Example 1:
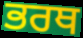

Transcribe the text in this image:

ਭਰਥ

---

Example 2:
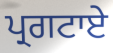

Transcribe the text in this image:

ਪ੍ਰਗਟਾਏ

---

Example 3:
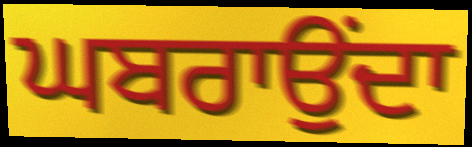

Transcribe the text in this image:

ਘਬਰਾਉਂਦਾ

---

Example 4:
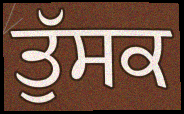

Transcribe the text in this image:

ਤੁੱਸਕ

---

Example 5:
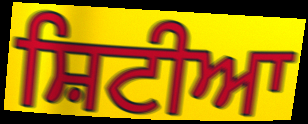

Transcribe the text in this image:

ਸ਼ਿਟੀਆ